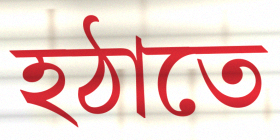
হঠাতে